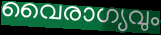
വൈരാഗ്യവും